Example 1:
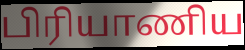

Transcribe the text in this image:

பிரியாணிய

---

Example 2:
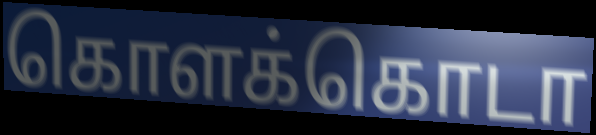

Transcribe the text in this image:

கொளக்கொடா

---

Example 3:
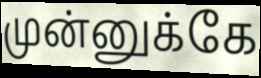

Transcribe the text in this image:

முன்னுக்கே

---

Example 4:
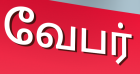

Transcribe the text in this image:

வேபர்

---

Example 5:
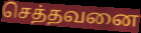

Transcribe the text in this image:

செத்தவனை